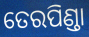
ତେରପିଣ୍ଡା